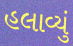
હલાવ્યું